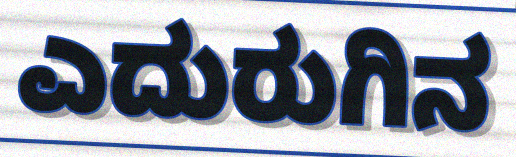
ಎದುರುಗಿನ